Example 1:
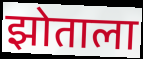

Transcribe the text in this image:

झोताला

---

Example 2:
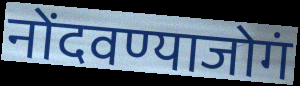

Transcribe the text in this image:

नोंदवण्याजोगं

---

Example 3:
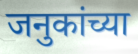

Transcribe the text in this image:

जनुकांच्या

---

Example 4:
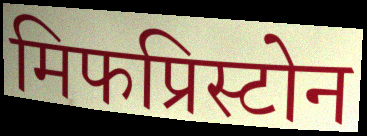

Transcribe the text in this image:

मिफप्रिस्टोन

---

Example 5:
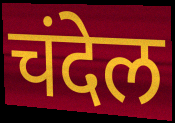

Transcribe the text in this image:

चंदेल